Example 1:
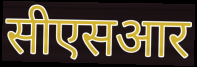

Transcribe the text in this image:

सीएसआर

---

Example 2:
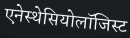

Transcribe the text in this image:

एनेस्थेसियोलॉजिस्ट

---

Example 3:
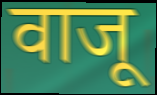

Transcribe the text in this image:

वाजू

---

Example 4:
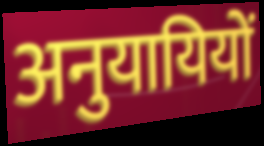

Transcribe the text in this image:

अनुयायियों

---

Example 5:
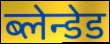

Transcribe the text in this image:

ब्लेन्डेड